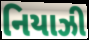
નિયાઝી